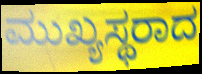
ಮುಖ್ಯಸ್ಥರಾದ